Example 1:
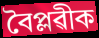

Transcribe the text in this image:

বৈপ্লৱীক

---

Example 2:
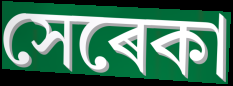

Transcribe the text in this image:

সেৰেকা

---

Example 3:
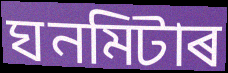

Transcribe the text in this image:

ঘনমিটাৰ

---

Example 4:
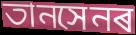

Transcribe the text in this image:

তানসেনৰ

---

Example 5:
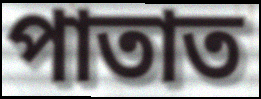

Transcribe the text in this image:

পাতাত